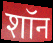
शॉन